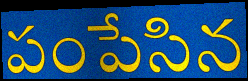
పంపేసిన